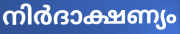
നിർദാക്ഷണ്യം